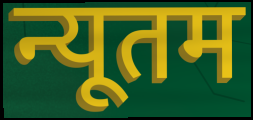
न्यूतम